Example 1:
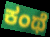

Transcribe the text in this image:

ಕಂಥೆ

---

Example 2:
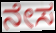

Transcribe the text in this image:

ನೇಸ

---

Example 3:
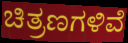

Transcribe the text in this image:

ಚಿತ್ರಣಗಳಿವೆ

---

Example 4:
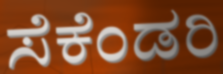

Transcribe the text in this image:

ಸೆಕೆಂಡರಿ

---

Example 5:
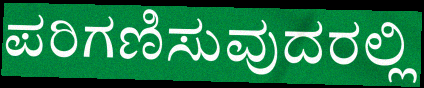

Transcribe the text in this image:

ಪರಿಗಣಿಸುವುದರಲ್ಲಿ